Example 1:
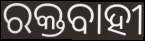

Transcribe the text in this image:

ରକ୍ତବାହୀ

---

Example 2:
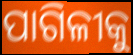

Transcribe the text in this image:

ପାଗିଳୀକୁ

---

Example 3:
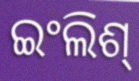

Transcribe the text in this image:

ଇଂଲିଶ୍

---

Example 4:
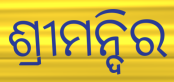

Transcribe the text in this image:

ଶ୍ରୀମନ୍ଦିର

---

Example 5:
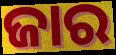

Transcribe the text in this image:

ଜାର